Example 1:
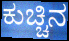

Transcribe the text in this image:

ಕುಚ್ಚಿನ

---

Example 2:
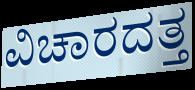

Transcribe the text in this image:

ವಿಚಾರದತ್ತ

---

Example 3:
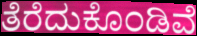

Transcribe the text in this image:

ತೆರೆದುಕೊಂಡಿವೆ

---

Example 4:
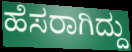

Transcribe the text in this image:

ಹೆಸರಾಗಿದ್ದು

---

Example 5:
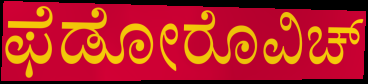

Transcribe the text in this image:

ಫೆಡೋರೊವಿಚ್